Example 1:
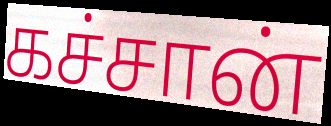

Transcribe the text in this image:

கச்சான்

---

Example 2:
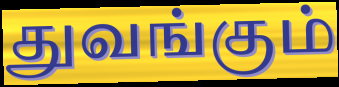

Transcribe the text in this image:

துவங்கும்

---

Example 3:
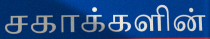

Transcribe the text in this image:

சகாக்களின்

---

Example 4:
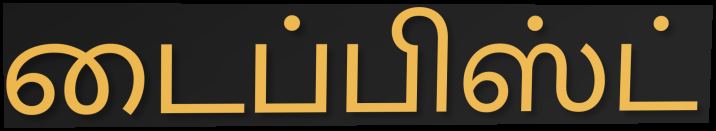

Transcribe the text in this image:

டைப்பிஸ்ட்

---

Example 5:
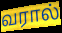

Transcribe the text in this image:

வரால்